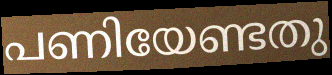
പണിയേണ്ടതു